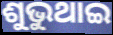
ଶୁଭୁଥାଇ